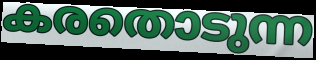
കരതൊടുന്ന